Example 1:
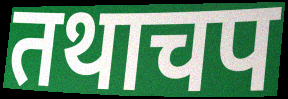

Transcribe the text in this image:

तथाचप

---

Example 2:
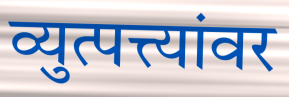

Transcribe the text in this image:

व्युत्पत्त्यांवर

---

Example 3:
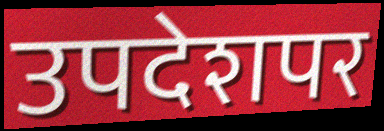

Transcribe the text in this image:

उपदेशपर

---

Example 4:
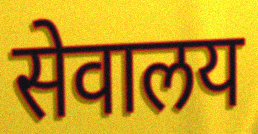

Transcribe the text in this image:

सेवालय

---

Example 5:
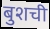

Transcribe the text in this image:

बुशची